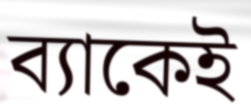
ব্যাকেই